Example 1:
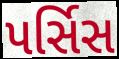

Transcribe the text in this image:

પર્સિસ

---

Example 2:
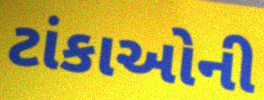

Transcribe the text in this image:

ટાંકાઓની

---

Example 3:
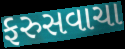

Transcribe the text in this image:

ફરુસવાચા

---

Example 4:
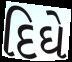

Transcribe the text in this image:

દિઘે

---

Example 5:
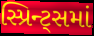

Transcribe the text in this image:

સ્પ્રિન્ટ્સમાં